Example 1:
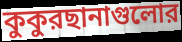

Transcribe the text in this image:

কুকুরছানাগুলোর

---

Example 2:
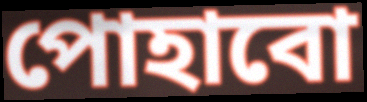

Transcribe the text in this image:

পোহাবো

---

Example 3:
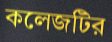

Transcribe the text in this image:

কলেজটির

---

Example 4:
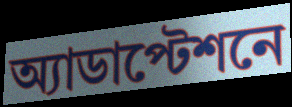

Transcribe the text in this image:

অ্যাডাপ্টেশনে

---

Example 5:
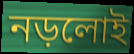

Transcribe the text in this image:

নড়লোই